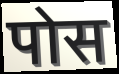
पोस